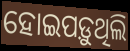
ହୋଇପଡ଼ୁଥିଲି